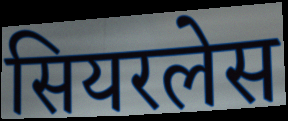
सियरलेस